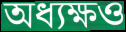
অধ্যক্ষও